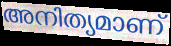
അനിത്യമാണ്